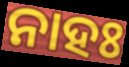
ନାହଃ